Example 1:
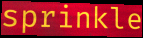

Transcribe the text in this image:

sprinkle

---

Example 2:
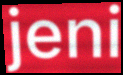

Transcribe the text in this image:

jeni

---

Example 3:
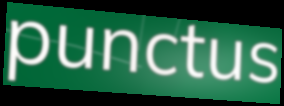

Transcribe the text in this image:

punctus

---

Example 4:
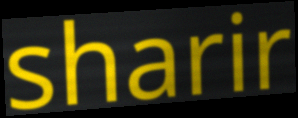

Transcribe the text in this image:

sharir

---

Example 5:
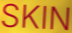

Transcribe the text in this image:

SKIN